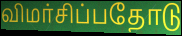
விமர்சிப்பதோடு